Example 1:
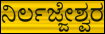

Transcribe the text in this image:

ನಿರ್ಲಜ್ಜೇಶ್ವರ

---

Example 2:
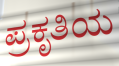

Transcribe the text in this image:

ಪ್ರಕೃತಿಯ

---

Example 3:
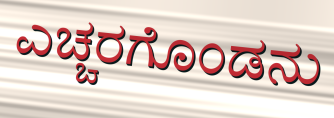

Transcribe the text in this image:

ಎಚ್ಚರಗೊಂಡನು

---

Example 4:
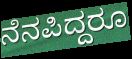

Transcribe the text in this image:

ನೆನಪಿದ್ದರೂ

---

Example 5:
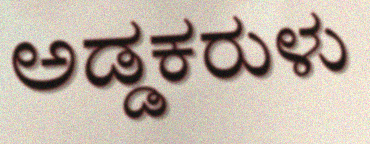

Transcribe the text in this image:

ಅಡ್ಡಕರುಳು